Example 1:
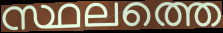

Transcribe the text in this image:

സ്ഥലത്തെ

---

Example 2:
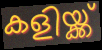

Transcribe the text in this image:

കളിയ്ക്ക്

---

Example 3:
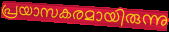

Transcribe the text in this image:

പ്രയാസകരമായിരുന്നു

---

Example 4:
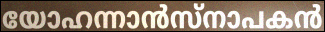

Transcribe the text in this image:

യോഹന്നാൻസ്നാപകൻ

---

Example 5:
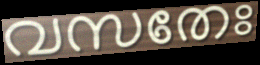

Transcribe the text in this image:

വസതേഃ